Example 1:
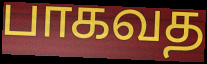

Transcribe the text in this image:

பாகவத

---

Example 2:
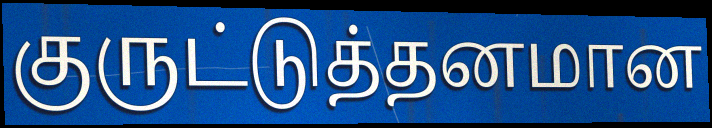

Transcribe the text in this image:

குருட்டுத்தனமான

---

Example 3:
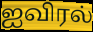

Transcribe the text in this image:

ஐவிரல்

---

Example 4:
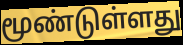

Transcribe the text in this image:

மூண்டுள்ளது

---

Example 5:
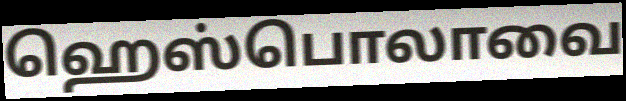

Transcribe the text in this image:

ஹெஸ்பொலாவை